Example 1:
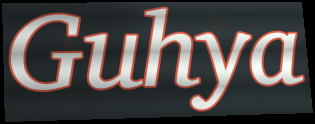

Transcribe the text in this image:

Guhya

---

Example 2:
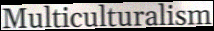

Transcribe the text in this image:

Multiculturalism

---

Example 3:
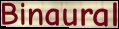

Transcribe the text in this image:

Binaural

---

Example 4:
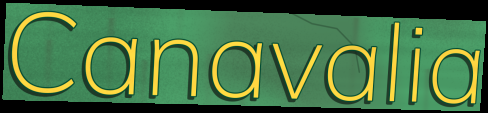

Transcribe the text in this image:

Canavalia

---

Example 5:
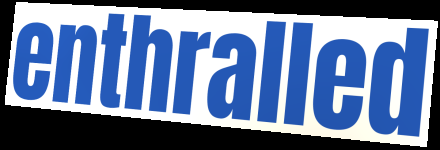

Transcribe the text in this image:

enthralled